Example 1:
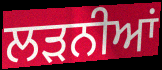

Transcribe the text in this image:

ਲੜਨੀਆਂ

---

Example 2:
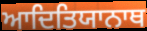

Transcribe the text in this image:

ਆਦਿਤਿਯਾਨਾਥ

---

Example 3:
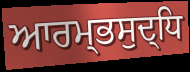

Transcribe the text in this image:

ਆਰਮ੍ਭਸੁਦ੍ਧਿ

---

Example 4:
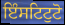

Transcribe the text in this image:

ਇੰਸਟਿਟੁਟੋ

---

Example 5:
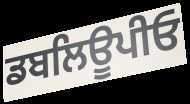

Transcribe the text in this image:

ਡਬਲਿਊਪੀਓ